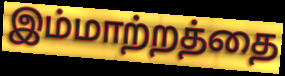
இம்மாற்றத்தை